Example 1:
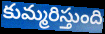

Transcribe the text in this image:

కుమ్మరిస్తుంది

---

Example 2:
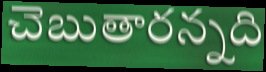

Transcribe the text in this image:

చెబుతారన్నది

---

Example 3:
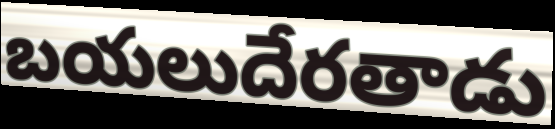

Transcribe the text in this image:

బయలుదేరతాడు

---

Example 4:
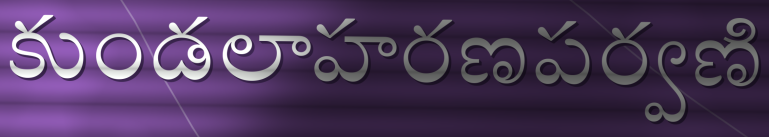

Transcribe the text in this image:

కుండలాహరణపర్వణి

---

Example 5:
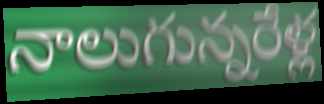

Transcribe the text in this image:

నాలుగున్నరేళ్ల